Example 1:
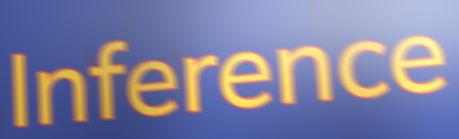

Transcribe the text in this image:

Inference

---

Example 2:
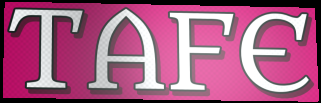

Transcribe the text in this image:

TAFE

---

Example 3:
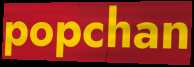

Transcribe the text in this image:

popchan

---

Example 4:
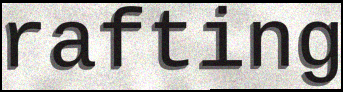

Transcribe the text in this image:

rafting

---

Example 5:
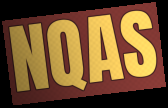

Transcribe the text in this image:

NQAS